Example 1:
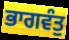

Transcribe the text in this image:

ਭਾਗਵੰਤੁ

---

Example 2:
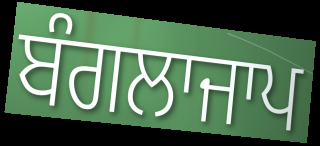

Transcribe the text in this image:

ਬੰਗਲਾਜਾਪ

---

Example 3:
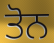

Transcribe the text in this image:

ਤੋਨ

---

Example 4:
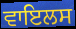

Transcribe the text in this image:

ਵਾਇਲਸ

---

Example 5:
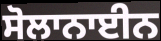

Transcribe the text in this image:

ਸੋਲਾਨਾਈਨ